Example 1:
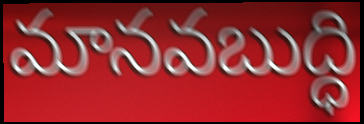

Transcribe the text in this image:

మానవబుద్ధి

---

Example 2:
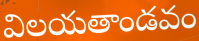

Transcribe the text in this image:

విలయతాండవం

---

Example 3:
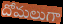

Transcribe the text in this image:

దోమలుగా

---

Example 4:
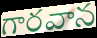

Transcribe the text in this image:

గారవాన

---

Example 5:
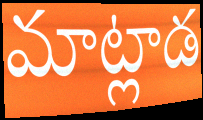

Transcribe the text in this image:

మాట్లాడ